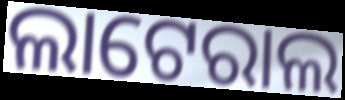
ଲାଟେରାଲ